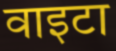
वाइटा